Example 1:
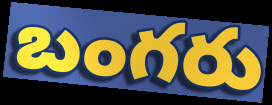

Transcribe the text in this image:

బంగరు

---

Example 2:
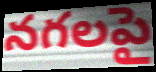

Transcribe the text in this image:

నగలపై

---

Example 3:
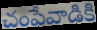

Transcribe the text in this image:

చంపేవాడికి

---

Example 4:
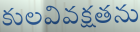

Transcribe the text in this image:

కులవివక్షతను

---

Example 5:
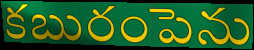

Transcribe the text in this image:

కబురంపెను